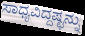
ಸಾಧ್ಯವಿದ್ದಷ್ಟನ್ನು